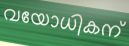
വയോധികന്